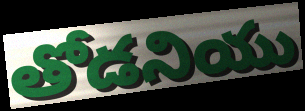
తోడనియు